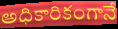
అధికారికంగానే